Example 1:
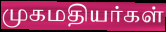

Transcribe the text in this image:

முகமதியர்கள்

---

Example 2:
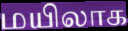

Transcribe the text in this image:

மயிலாக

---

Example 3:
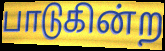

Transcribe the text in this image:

பாடுகின்ற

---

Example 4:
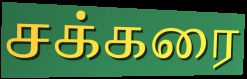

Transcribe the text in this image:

சக்கரை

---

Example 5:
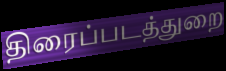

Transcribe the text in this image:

திரைப்படத்துறை